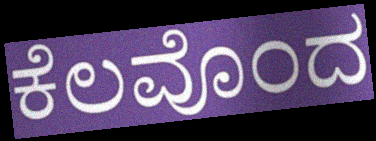
ಕೆಲವೊಂದ